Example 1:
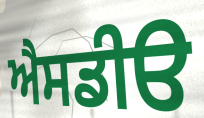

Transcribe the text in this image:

ਐਸਡੀੳ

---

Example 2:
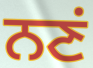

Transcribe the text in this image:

ਨਣਂ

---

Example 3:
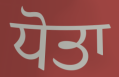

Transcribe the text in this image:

ਧੋਤਾ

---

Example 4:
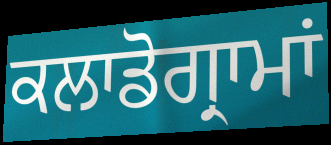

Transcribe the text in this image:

ਕਲਾਡੋਗ੍ਰਾਮਾਂ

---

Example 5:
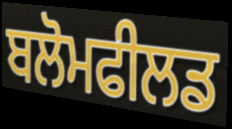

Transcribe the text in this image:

ਬਲੋਮਫੀਲਡ